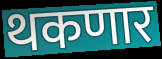
थकणार